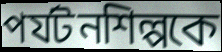
পর্যটনশিল্পকে